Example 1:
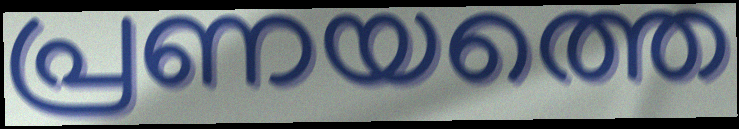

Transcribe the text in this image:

പ്രണയത്തെ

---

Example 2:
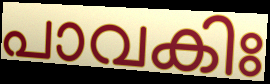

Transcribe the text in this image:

പാവകിഃ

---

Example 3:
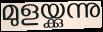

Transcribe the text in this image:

മുളയ്ക്കുന്നു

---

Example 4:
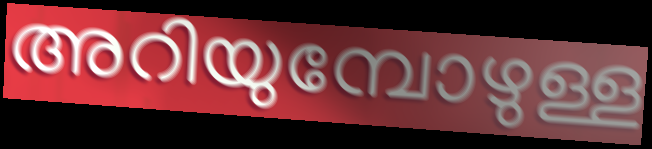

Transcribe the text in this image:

അറിയുമ്പോഴുള്ള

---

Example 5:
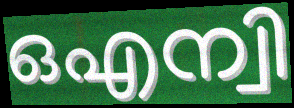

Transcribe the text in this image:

ഒഎന്വി